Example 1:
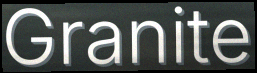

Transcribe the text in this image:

Granite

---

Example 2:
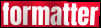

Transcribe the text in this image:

formatter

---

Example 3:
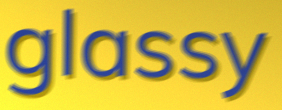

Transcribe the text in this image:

glassy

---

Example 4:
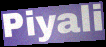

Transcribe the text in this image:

Piyali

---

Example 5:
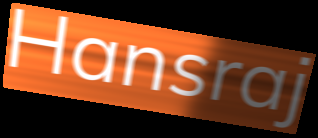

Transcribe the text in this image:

Hansraj